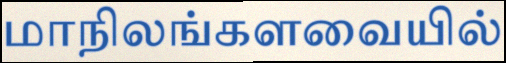
மாநிலங்களவையில்